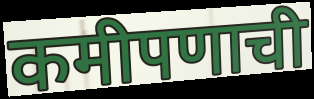
कमीपणाची